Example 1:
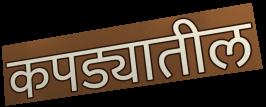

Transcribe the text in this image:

कपड्यातील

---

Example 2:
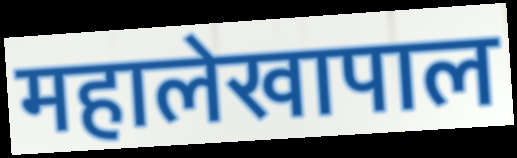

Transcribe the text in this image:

महालेखापाल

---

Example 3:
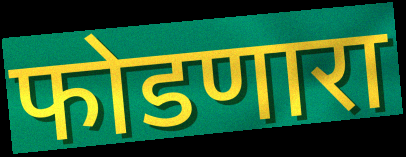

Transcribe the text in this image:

फोडणारा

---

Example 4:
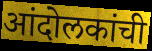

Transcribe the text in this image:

आंदोलकांची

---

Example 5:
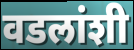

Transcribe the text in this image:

वडलांशी